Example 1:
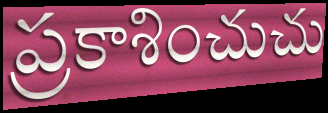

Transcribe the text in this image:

ప్రకాశించుచు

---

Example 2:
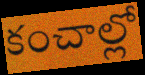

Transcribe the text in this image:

కంచాల్లో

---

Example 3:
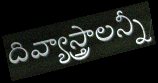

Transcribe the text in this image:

దివ్యాస్త్రాలన్నీ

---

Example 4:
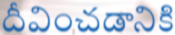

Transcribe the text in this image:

దీవించడానికి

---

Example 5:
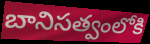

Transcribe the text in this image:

బానిసత్వంలోకి